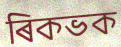
ৰিকভক